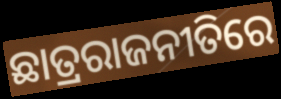
ଛାତ୍ରରାଜନୀତିରେ